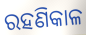
ରହଣିକାଳ